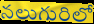
నలుగురిలో